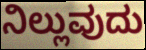
ನಿಲ್ಲುವುದು